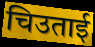
चिउताई